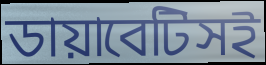
ডায়াবেটিসই